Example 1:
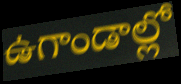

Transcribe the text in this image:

ఉగాండాల్లో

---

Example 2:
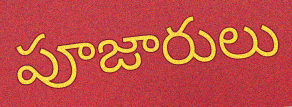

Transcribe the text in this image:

పూజారులు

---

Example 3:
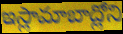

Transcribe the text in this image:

ఇస్లామాబాద్లోని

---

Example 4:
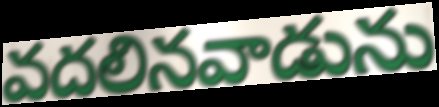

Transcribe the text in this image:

వదలినవాడును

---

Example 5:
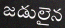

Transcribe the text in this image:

జడులైన